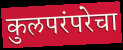
कुलपरंपरेचा